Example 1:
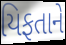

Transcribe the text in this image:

યિફતાને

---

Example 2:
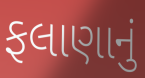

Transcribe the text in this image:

ફલાણાનું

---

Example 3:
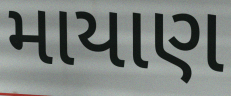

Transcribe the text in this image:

માયાણ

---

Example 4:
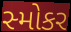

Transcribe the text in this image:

સ્મોકર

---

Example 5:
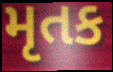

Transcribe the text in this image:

મૃતક